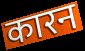
कारन